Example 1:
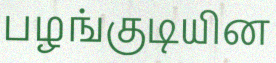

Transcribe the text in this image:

பழங்குடியின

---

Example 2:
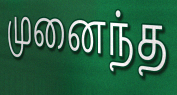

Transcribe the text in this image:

முனைந்த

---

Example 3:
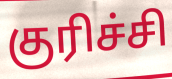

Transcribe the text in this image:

குரிச்சி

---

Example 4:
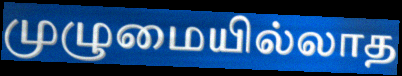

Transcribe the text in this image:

முழுமையில்லாத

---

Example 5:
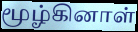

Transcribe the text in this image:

மூழ்கினாள்